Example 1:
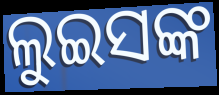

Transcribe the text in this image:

ଲୁଇସଙ୍କ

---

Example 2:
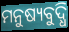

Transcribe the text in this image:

ମନୁଷ୍ୟବୁଦ୍ଧି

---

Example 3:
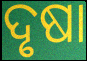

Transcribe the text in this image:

ଦୃଷା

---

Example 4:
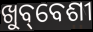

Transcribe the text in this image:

ଖୁବ୍‌ବେଶୀ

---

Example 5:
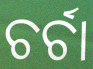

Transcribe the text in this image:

ଚର୍ଚା